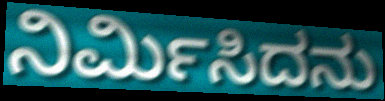
ನಿರ್ಮಿಸಿದನು